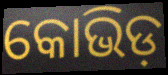
କୋଭିଡ଼